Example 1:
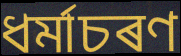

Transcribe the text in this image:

ধৰ্মাচৰণ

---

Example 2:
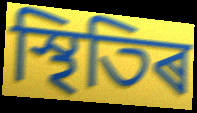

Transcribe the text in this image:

স্থিতিৰ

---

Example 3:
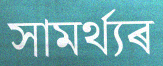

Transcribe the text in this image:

সামৰ্থ্যৰ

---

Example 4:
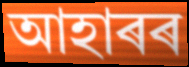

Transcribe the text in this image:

আহাৰৰ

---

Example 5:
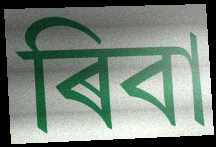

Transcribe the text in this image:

ৰিবা